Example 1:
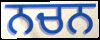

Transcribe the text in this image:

ਨਚਨ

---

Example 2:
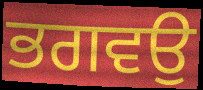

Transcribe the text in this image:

ਭਗਵਉ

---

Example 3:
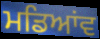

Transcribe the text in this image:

ਮਡਿਆਂਵ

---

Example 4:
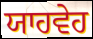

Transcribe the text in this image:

ਯਾਹਵੇਹ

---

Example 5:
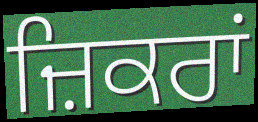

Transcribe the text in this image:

ਜ਼ਿਕਰਾਂ